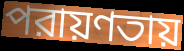
পরায়ণতায়